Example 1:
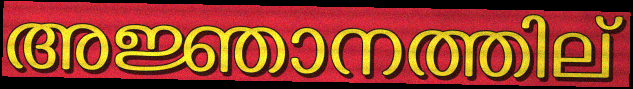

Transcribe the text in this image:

അജ്ഞാനത്തില്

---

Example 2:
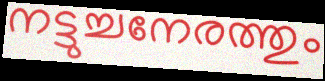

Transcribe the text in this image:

നട്ടുച്ചനേരത്തും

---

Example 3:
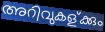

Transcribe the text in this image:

അറിവുകള്ക്കും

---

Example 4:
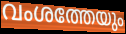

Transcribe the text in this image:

വംശത്തേയും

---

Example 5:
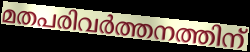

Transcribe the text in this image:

മതപരിവർത്തനത്തിന്